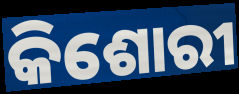
କିଶୋରୀ